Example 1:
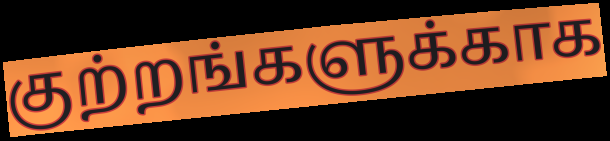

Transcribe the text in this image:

குற்றங்களுக்காக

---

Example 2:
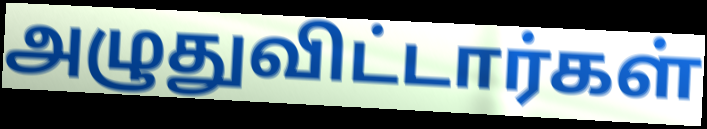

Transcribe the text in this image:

அழுதுவிட்டார்கள்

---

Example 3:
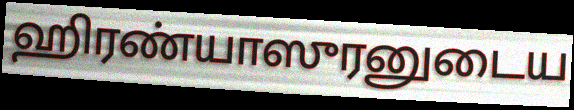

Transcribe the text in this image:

ஹிரண்யாஸுரனுடைய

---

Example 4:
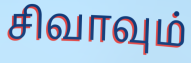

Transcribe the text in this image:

சிவாவும்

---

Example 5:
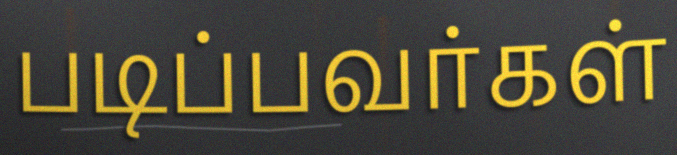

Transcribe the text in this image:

படிப்பவர்கள்